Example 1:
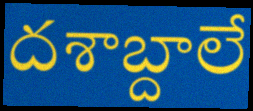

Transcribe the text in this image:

దశాబ్దాలే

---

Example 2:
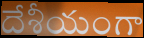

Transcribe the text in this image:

దేశీయంగా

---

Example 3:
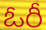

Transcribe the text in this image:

ఓరీ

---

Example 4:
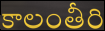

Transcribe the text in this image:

కాలంతీరి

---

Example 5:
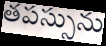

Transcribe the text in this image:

తపస్సును